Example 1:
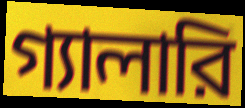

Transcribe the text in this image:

গ্যালারি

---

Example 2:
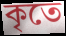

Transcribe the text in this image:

কৃতে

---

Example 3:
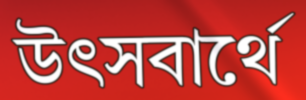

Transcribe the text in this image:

উৎসবার্থে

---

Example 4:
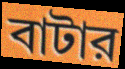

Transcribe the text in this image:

বাটার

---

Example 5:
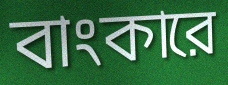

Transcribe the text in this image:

বাংকারে